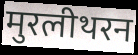
मुरलीथरन